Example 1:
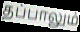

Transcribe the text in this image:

தப்பாலும்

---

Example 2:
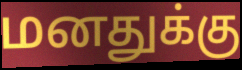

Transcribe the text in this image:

மனதுக்கு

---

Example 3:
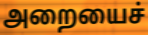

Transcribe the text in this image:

அறையைச்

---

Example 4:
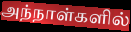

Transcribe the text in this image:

அந்நாள்களில்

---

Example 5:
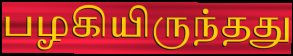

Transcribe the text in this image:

பழகியிருந்தது